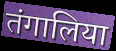
तंगालिया